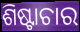
ଶିଷ୍ଟାଚାର